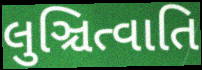
લુઞ્ચિત્વાતિ